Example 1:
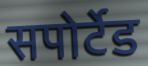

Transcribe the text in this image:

सपोर्टेड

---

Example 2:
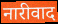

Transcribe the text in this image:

नारीवाद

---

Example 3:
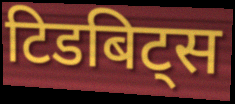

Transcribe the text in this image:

टिडबिट्स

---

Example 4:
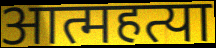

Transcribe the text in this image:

आत्महत्या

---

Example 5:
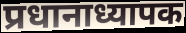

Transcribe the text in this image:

प्रधानाध्यापक